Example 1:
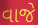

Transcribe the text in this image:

વાજે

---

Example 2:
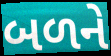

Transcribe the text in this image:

બળને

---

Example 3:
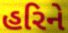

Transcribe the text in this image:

હરિને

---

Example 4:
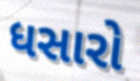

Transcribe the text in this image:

ધસારો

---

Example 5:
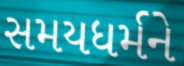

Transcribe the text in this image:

સમયધર્મને